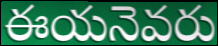
ఈయనెవరు